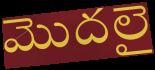
మొదలై